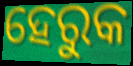
ହେରୁକ